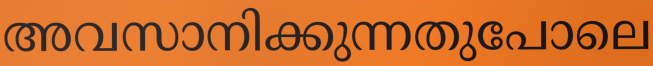
അവസാനിക്കുന്നതുപോലെ